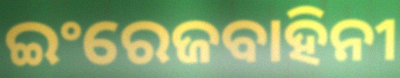
ଇଂରେଜବାହିନୀ